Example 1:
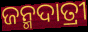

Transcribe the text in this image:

ଜନ୍ମଦାତ୍ରୀ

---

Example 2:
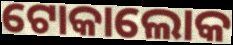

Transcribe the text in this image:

ଟୋକାଲୋକ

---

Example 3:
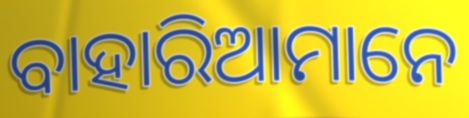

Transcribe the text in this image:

ବାହାରିଆମାନେ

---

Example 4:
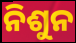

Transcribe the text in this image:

ନିଶୁନ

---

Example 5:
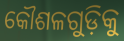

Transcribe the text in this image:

କୌଶଳଗୁଡ଼ିକୁ